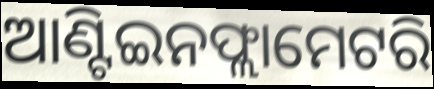
ଆଣ୍ଟିଇନଫ୍ଲାମେଟରି